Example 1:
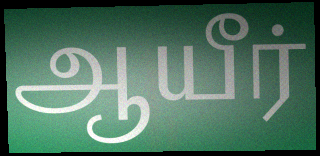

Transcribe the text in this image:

ஆயீர்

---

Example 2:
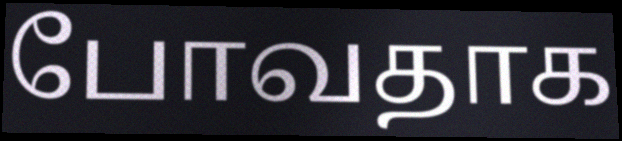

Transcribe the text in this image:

போவதாக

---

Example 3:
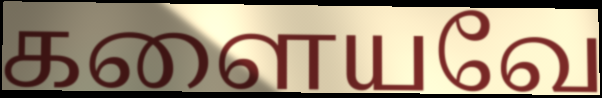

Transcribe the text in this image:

களையவே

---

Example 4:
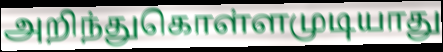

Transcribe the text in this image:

அறிந்துகொள்ளமுடியாது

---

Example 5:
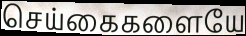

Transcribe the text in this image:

செய்கைகளையே